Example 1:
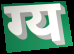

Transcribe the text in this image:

ग्य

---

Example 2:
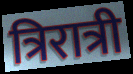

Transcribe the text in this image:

त्रिरात्री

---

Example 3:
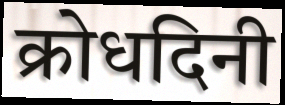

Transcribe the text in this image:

क्रोधदिनी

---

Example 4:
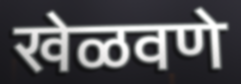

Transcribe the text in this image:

खेळवणे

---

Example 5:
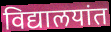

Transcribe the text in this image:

विद्यालयांत